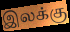
இலக்கு